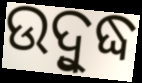
ଉଦ୍ବୁଦ୍ଧ